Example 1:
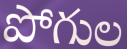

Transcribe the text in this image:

పోగుల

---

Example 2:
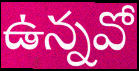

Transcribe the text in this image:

ఉన్నవో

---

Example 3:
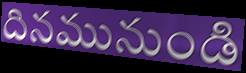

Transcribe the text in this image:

దినమునుండి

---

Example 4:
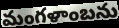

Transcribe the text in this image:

మంగళాంబను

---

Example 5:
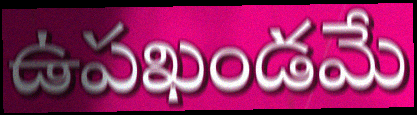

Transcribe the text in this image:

ఉపఖండమే